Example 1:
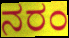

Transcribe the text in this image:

ನರಂ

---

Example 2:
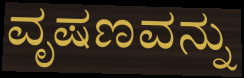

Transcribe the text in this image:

ವೃಷಣವನ್ನು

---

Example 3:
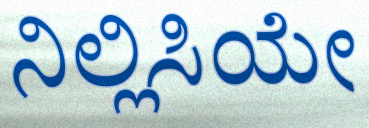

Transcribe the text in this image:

ನಿಲ್ಲಿಸಿಯೇ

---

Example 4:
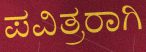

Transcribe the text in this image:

ಪವಿತ್ರರಾಗಿ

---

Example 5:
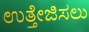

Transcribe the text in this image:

ಉತ್ತೇಜಿಸಲು